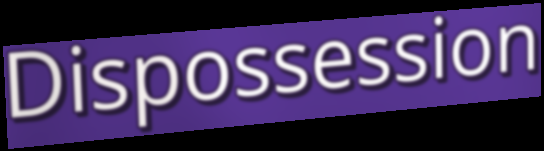
Dispossession